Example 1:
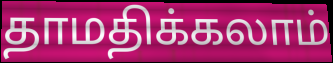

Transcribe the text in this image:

தாமதிக்கலாம்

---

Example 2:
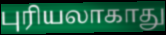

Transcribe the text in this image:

புரியலாகாது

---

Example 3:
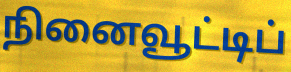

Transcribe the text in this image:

நினைவூட்டிப்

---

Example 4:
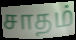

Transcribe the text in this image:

சாதம்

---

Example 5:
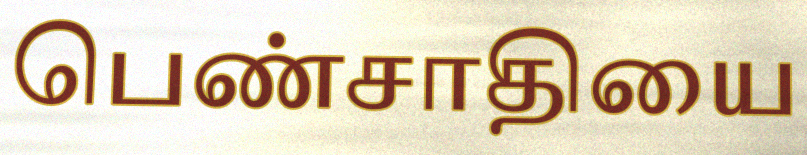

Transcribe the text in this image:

பெண்சாதியை